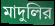
মাদুলির